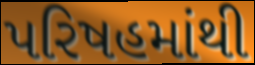
પરિષહમાંથી